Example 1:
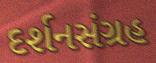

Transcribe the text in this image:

દર્શનસંગ્રહ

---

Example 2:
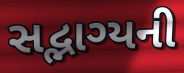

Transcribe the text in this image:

સદ્ભાગ્યની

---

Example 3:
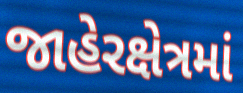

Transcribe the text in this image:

જાહેરક્ષેત્રમાં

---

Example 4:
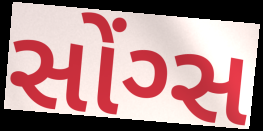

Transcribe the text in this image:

સોંગ્સ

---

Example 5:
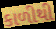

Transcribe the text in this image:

કાળીથી